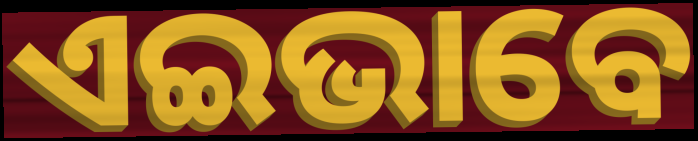
ଏଇଭାବେ